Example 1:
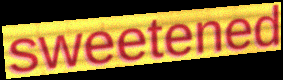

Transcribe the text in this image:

sweetened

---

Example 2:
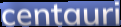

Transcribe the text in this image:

centauri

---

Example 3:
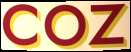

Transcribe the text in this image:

coz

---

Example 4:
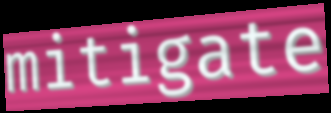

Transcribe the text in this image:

mitigate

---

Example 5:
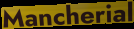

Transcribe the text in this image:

Mancherial